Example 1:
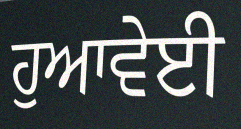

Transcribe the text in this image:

ਹੁਆਵੇਈ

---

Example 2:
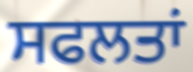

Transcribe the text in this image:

ਸਫਲਤਾਂ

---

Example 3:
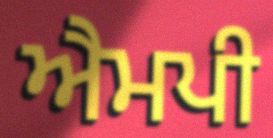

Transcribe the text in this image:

ਐਮਪੀ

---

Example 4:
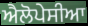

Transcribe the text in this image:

ਐਲੋਪੇਸੀਆ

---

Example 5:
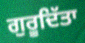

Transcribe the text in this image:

ਗੁਰੂਦਿੱਤਾ